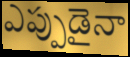
ఎప్పుడైనా